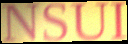
NSUI